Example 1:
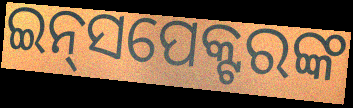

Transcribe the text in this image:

ଇନ୍‍ସପେକ୍ଟରଙ୍କ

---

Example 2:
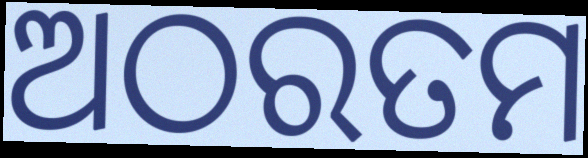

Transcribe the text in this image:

ଅଠରତମ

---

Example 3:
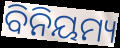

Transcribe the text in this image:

ବିନିୟମ୍ୟ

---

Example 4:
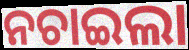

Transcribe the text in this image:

ନଚାଇଲା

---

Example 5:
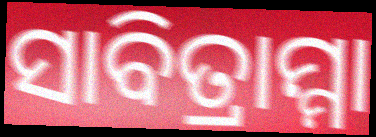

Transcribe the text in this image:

ସାବିତ୍ରାମ୍ମା